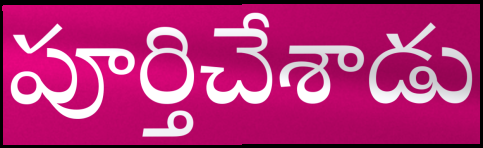
పూర్తిచేశాడు